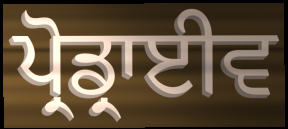
ਪ੍ਰੋਡ੍ਰਾਈਵ